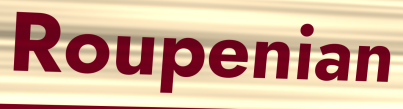
Roupenian